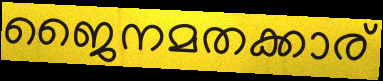
ജൈനമതക്കാര്